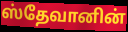
ஸ்தேவானின்